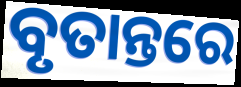
ବୃତାନ୍ତରେ